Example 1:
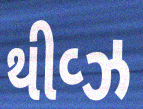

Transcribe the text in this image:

થીવ્ઝ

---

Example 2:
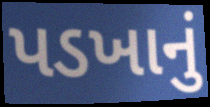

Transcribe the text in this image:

પડખાનું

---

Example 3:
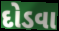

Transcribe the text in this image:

દોડવા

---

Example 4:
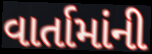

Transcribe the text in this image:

વાર્તામાંની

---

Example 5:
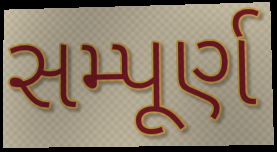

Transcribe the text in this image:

સમ્પૂર્ણ